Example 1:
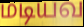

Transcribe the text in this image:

மடியவ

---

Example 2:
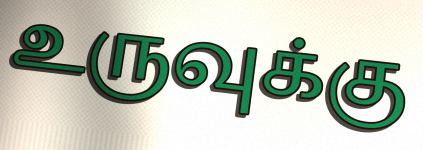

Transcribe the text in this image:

உருவுக்கு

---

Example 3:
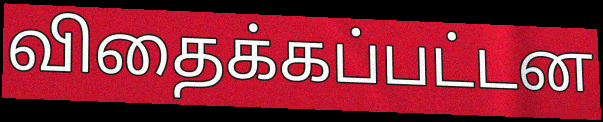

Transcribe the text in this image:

விதைக்கப்பட்டன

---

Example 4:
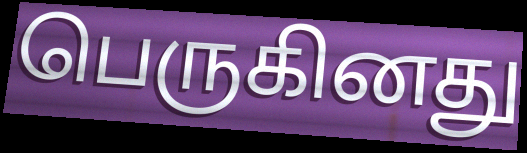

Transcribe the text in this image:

பெருகினது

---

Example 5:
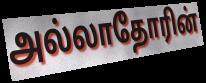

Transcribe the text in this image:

அல்லாதோரின்